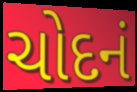
ચોદનં